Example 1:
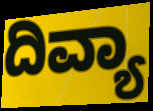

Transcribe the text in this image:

ದಿವ್ಯಾ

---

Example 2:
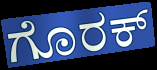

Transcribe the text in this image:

ಗೊರಕ್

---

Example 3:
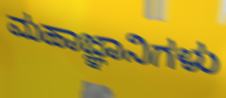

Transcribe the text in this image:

ಮಹಾಜ್ಞಾನಿಗಳು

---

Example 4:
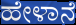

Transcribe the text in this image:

ಹೇಳಾನೆ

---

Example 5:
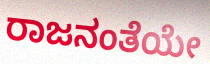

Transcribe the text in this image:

ರಾಜನಂತೆಯೇ